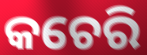
କଚେରି